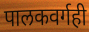
पालकवर्गही